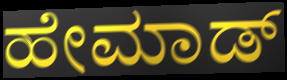
ಹೇಮಾಡ್